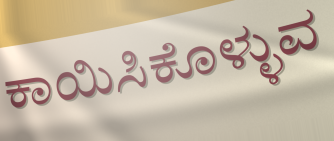
ಕಾಯಿಸಿಕೊಳ್ಳುವ